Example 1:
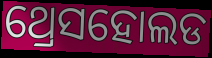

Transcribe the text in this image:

ଥ୍ରେସହୋଲଡ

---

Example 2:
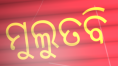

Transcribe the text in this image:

ମୁଲୁତବି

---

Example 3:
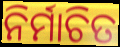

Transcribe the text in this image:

ନିର୍ମାଚିତ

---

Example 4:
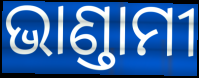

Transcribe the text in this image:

ଭାଣ୍ଡାମୀ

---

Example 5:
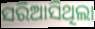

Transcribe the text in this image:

ସରିଆସିଥିଲା